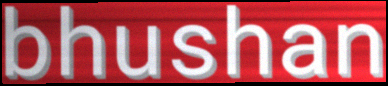
bhushan